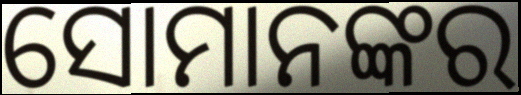
ସୋମାନଙ୍କର